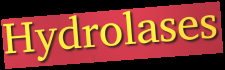
Hydrolases